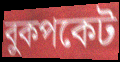
বুকপকেট